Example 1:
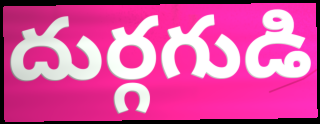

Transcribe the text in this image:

దుర్గగుడి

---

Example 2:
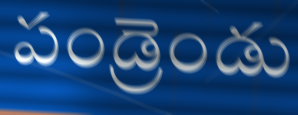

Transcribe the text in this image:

పండ్రెండు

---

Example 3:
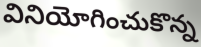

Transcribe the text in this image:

వినియోగించుకొన్న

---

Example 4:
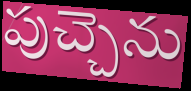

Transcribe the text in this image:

పుచ్చెను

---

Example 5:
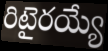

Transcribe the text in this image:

రిటైరయ్యే